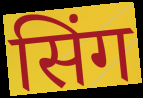
सिंग